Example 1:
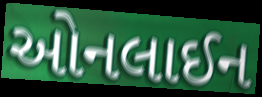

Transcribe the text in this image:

ઓનલાઈન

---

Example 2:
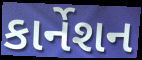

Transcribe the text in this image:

કાર્નેશન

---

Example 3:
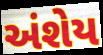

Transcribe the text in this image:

અંશેય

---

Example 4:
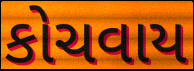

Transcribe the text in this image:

કોચવાય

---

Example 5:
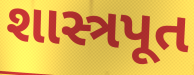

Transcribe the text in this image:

શાસ્ત્રપૂત